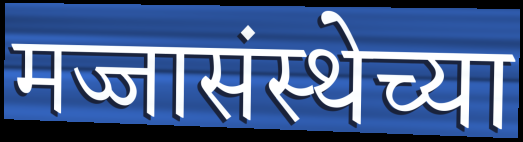
मज्जासंस्थेच्या